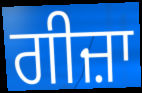
ਗੀਜ਼ਾ